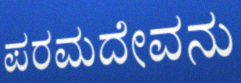
ಪರಮದೇವನು